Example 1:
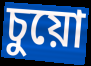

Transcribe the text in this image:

চুয়ো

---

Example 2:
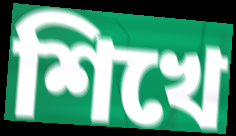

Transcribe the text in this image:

শিখে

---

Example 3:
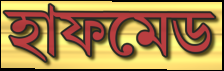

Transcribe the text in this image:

হাফমেড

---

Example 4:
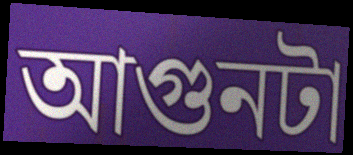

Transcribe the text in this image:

আগুনটা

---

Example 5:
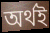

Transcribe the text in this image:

অর্থই